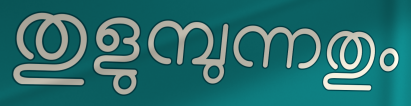
തുളുമ്പുന്നതും